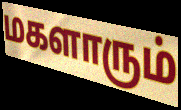
மகளாரும்